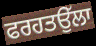
ਫਰਹਤਉੱਲਾ